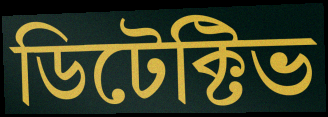
ডিটেক্টিভ